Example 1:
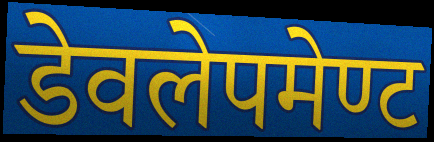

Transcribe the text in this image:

डेवलेपमेण्ट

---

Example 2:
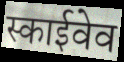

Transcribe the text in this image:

स्काईवेव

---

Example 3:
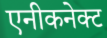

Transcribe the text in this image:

एनीकनेक्ट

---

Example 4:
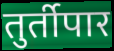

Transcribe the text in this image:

तुर्तीपार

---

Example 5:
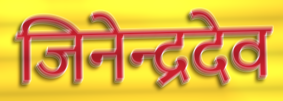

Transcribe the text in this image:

जिनेन्द्रदेव